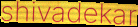
shivadekar